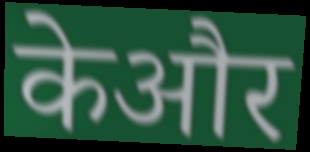
केऔर